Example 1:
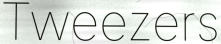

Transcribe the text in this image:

Tweezers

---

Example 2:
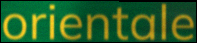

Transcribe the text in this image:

orientale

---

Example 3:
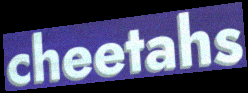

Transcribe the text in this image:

cheetahs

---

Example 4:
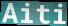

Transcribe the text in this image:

Aiti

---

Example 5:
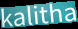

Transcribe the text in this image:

kalitha